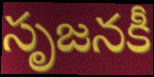
సృజనకీ